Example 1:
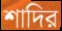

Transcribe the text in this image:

শাদির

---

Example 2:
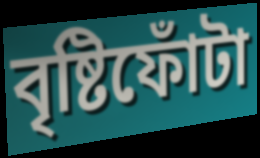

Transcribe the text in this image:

বৃষ্টিফোঁটা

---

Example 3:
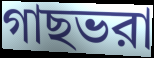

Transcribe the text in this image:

গাছভরা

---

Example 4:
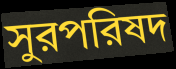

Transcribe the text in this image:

সুরপরিষদ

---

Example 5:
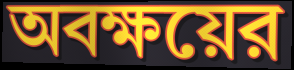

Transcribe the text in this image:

অবক্ষয়ের